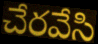
చేరవేసి